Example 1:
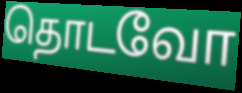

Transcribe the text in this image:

தொடவோ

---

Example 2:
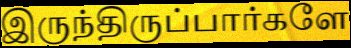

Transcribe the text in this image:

இருந்திருப்பார்களே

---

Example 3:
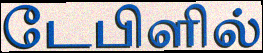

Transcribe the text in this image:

டேபிளில்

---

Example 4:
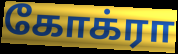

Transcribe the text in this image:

கோக்ரா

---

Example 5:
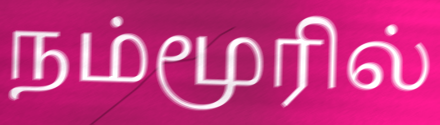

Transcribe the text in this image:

நம்மூரில்